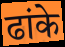
ढांके